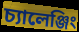
চ্যালেঞ্জিং